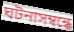
ঘটনাসম্বন্ধে